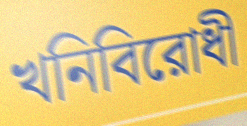
খনিবিরোধী